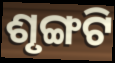
ଶୃଙ୍ଗଟି